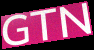
GTN